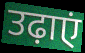
उढ़ाएं